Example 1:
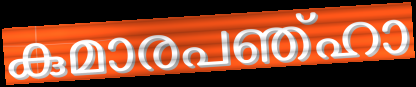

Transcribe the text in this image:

കുമാരപഞ്ഹാ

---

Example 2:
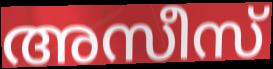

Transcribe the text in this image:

അസീസ്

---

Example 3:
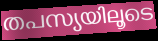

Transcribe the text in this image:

തപസ്യയിലൂടെ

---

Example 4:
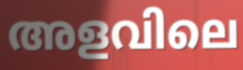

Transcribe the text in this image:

അളവിലെ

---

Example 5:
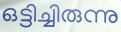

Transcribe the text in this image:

ഒട്ടിച്ചിരുന്നു